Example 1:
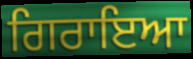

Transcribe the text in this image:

ਗਿਰਾਇਆ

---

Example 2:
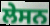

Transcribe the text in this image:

ਲੇਸਨ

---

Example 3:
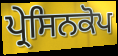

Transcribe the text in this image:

ਪ੍ਰੇਸਿਨਕੋਪ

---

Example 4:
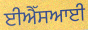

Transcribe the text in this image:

ਈਐੱਸਆਈ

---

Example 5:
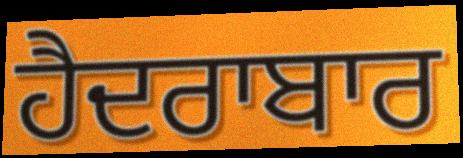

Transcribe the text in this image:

ਹੈਦਰਾਬਾਰ